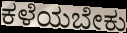
ಕಳೆಯಬೇಕು